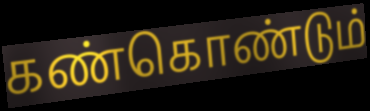
கண்கொண்டும்